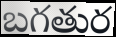
బగతుర